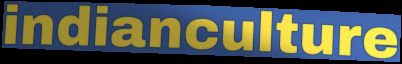
indianculture